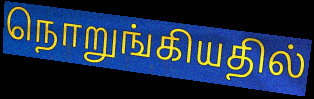
நொறுங்கியதில்